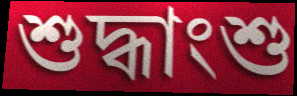
শুদ্ধাংশু